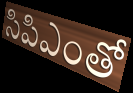
సిపిఎంతో